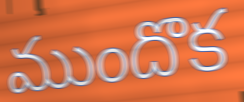
ముందొక